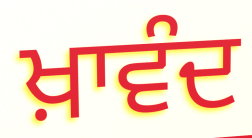
ਖ਼ਾਵੰਦ